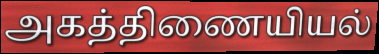
அகத்திணையியல்